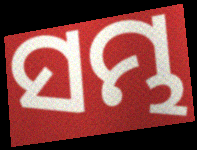
ସମ୍ଭ